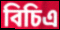
বিচিএ